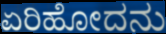
ಏರಿಹೋದನು